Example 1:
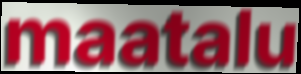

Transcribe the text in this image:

maatalu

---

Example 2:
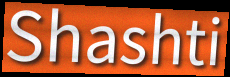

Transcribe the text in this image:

Shashti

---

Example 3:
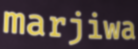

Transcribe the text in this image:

marjiwa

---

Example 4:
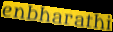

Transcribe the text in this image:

enbharathi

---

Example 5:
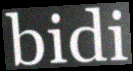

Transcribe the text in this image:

bidi